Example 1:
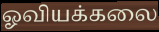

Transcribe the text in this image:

ஓவியக்கலை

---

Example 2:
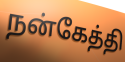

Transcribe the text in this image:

நன்கேத்தி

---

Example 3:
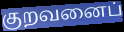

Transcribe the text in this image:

குறவனைப்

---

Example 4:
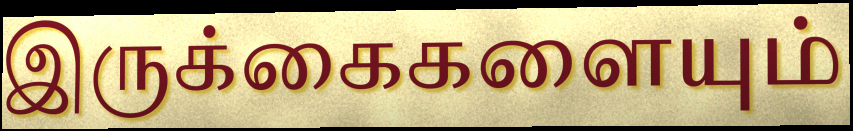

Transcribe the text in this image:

இருக்கைகளையும்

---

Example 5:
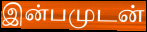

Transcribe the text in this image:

இன்பமுடன்